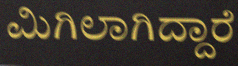
ಮಿಗಿಲಾಗಿದ್ದಾರೆ